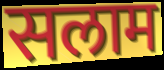
सलाम